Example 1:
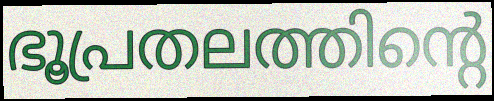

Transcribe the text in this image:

ഭൂപ്രതലത്തിന്റെ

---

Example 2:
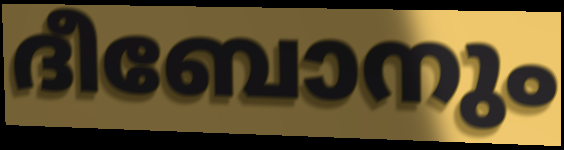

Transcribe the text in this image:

ദീബോനും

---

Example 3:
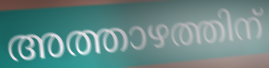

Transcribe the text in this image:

അത്താഴത്തിന്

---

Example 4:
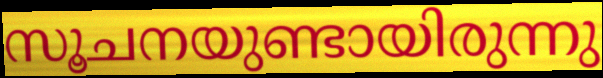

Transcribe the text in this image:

സൂചനയുണ്ടായിരുന്നു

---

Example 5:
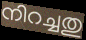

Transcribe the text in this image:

നിറച്ചതു